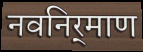
नवनिर्माण